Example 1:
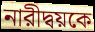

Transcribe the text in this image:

নারীদ্বয়কে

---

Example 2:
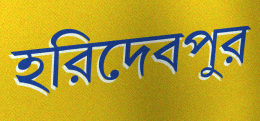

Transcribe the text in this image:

হরিদেবপুর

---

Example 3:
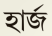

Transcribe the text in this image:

হার্জ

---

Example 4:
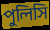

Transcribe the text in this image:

পুলিসি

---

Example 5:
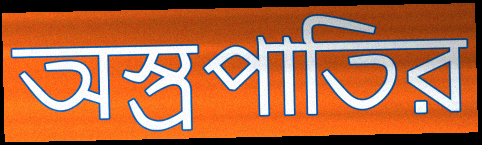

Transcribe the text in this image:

অস্ত্রপাতির